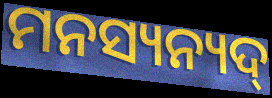
ମନସ୍ୟନ୍ୟଦ୍